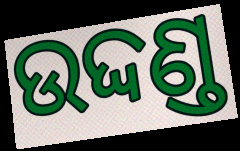
ଉଦ୍ଦଣ୍ଡ